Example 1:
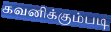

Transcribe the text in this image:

கவனிக்கும்படி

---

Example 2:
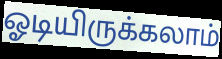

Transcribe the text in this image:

ஓடியிருக்கலாம்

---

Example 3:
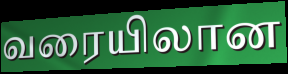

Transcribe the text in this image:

வரையிலான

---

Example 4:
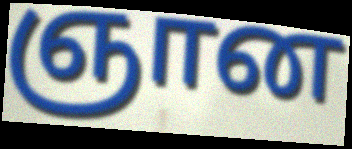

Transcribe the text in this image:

ஞான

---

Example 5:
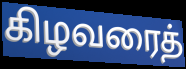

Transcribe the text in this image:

கிழவரைத்